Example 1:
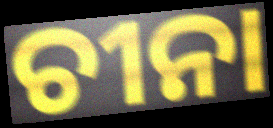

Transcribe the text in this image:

ଚୀନା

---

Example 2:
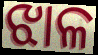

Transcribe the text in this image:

ଝାଳ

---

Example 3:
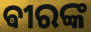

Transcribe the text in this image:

ଵୀରଙ୍କ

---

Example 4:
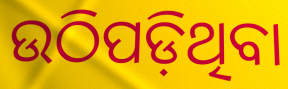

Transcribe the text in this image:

ଉଠିପଡ଼ିଥିବା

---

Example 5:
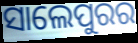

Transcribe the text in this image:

ସାଲେପୁରର